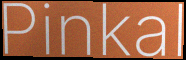
Pinkal